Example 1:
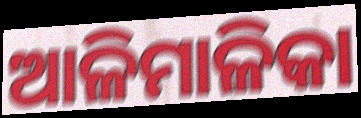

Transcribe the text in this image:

ଆଳିମାଳିକା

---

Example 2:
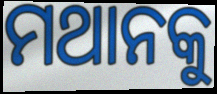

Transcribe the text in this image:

ମଥାନକୁ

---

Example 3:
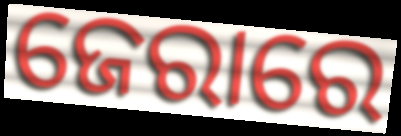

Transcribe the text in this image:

ଜେରାରେ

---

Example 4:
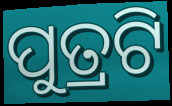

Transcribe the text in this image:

ପୁତ୍ରଟି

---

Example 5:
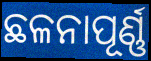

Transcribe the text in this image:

ଛଳନାପୂର୍ଣ୍ଣ